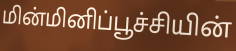
மின்மினிப்பூச்சியின்